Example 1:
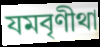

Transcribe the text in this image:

যমবৃণীথা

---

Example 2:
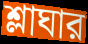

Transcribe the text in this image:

শ্লাঘার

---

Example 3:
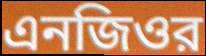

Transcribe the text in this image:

এনজিওর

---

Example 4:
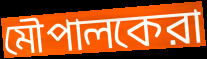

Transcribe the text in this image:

মৌপালকেরা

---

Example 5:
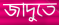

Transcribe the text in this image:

জাদুতে